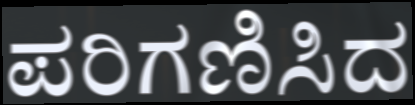
ಪರಿಗಣಿಸಿದ